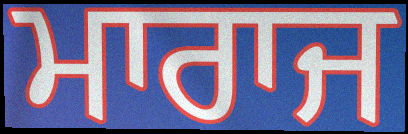
ਮਾਰਾਜ